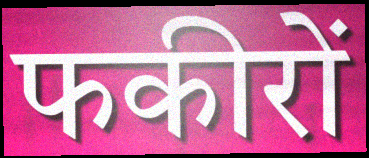
फकीरों